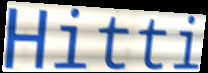
Hitti